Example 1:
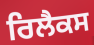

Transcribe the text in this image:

ਰਿਲੈਕਸ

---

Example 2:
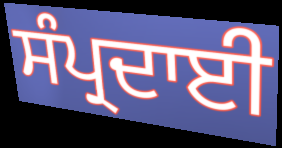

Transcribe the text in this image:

ਸੰਪ੍ਰਦਾਈ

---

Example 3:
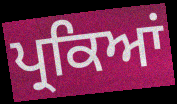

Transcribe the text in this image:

ਪ੍ਰਕਿਆਂ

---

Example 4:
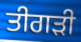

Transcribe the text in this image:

ਤੀਗੜੀ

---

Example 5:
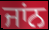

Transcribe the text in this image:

ਜਾਂਨ